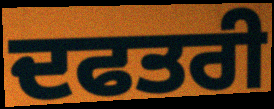
ਦਫਤਰੀ